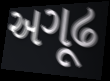
અગૂઢ